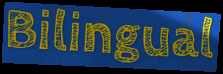
Bilingual